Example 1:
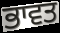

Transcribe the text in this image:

ਭਾਵਤ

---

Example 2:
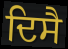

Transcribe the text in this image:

ਦਿਸੈ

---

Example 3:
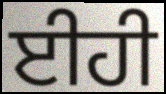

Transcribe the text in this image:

ਈਹੀ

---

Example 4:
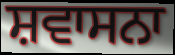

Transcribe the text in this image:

ਸ਼ਵਾਸਨਾ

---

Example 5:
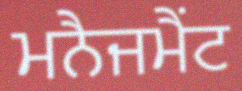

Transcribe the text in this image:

ਮਨੈਜਮੈਂਟ